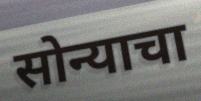
सोन्याचा